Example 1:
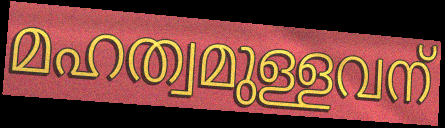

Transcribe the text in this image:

മഹത്വമുള്ളവന്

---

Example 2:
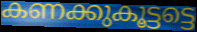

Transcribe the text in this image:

കണക്കുകൂട്ടട്ടെ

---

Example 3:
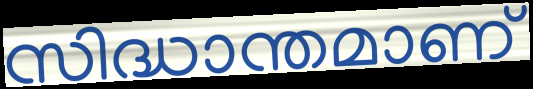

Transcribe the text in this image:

സിദ്ധാന്തമാണ്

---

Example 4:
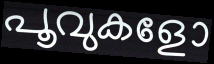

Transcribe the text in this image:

പൂവുകളോ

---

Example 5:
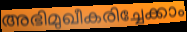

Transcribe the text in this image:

അഭിമുഖീകരിച്ചേക്കാം